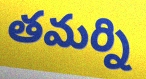
తమర్ని